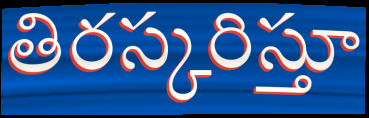
తిరస్కరిస్తూ